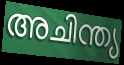
അചിന്ത്യ